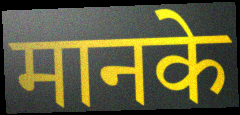
मानके